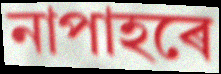
নাপাহৰে